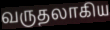
வருதலாகிய